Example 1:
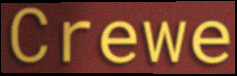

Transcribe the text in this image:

Crewe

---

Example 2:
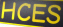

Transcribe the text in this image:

HCES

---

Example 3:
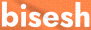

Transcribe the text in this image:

bisesh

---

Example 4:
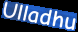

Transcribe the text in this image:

Ulladhu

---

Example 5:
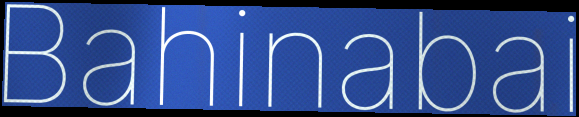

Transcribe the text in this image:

Bahinabai